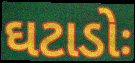
ઘટાડોઃ